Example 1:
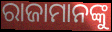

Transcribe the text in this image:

ରାଜାମାନଙ୍କୁ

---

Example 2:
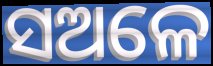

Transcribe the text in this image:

ସଅଳେ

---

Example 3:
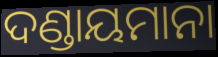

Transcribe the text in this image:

ଦଣ୍ଡାୟମାନା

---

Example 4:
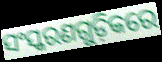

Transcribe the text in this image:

ସଂସ୍କରଣଗୁଡ଼ିକରେ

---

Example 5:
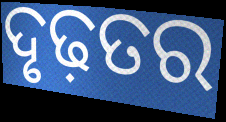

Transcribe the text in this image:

ଦୃଢ଼ତର